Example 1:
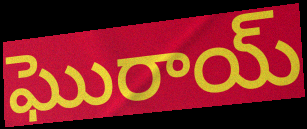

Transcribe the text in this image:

ఘొరాయ్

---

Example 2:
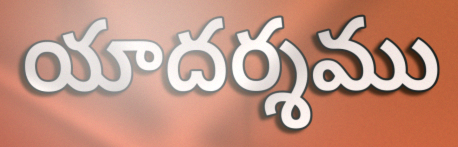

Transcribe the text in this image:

యాదర్శము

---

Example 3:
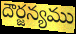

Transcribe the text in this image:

దౌర్జన్యము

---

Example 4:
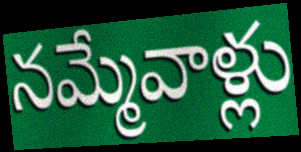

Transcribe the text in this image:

నమ్మేవాళ్లు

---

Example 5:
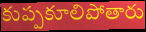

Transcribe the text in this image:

కుప్పకూలిపోతారు